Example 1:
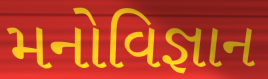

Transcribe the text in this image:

મનોવિજ્ઞાન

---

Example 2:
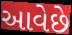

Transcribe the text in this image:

આવેછે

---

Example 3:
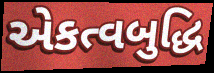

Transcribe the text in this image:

એકત્વબુદ્ધિ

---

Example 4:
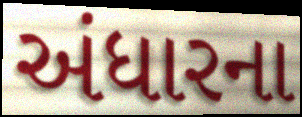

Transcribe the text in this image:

અંધારના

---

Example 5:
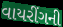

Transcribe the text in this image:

વાયરીંગની